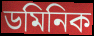
ডমিনিক